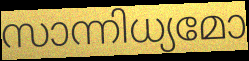
സാന്നിധ്യമോ